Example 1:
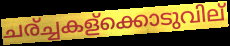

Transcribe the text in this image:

ചര്ച്ചകള്ക്കൊടുവില്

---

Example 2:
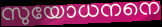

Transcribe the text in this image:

സുയോധനനെ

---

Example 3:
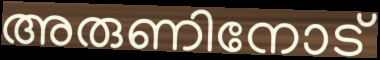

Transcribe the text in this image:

അരുണിനോട്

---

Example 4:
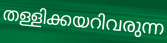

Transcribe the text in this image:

തള്ളിക്കയറിവരുന്ന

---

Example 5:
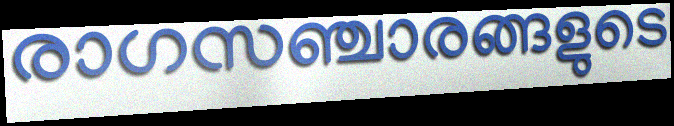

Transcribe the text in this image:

രാഗസഞ്ചാരങ്ങളുടെ